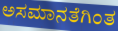
ಅಸಮಾನತೆಗಿಂತ